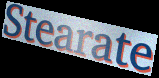
Stearate